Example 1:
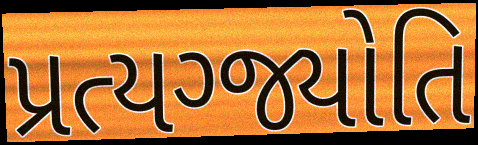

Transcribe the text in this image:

પ્રત્યગ્જ્યોતિ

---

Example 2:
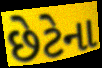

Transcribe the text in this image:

છેટેના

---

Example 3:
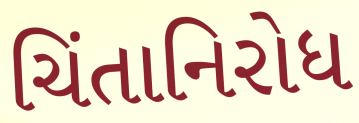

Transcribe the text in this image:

ચિંતાનિરોધ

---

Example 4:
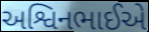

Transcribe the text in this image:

અશ્વિનભાઈએ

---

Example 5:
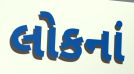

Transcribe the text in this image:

લોકનાં